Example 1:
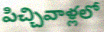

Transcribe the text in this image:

పిచ్చివాళ్లలో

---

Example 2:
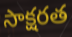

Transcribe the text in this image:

సాక్షరత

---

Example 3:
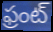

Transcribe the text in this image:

ఫ్రంట్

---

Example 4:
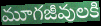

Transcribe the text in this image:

మూగజీవులకి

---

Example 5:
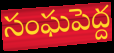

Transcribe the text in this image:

సంఘపెద్ద